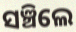
ସଞ୍ଚିଲେ